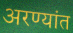
अरण्यांत